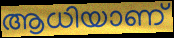
ആധിയാണ്